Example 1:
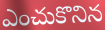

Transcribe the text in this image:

ఎంచుకొనిన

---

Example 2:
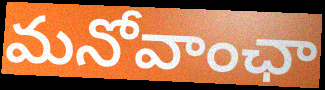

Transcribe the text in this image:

మనోవాంఛా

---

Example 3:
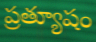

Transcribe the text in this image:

ప్రత్యూషం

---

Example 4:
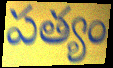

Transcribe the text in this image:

పత్యం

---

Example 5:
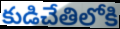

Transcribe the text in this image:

కుడిచేతిలోకి